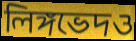
লিঙ্গভেদও